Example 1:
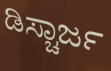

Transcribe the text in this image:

ಡಿಸ್ಚಾರ್ಜ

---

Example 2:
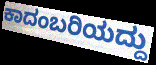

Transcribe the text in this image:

ಕಾದಂಬರಿಯದ್ದು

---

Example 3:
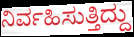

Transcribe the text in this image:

ನಿರ್ವಹಿಸುತ್ತಿದ್ದು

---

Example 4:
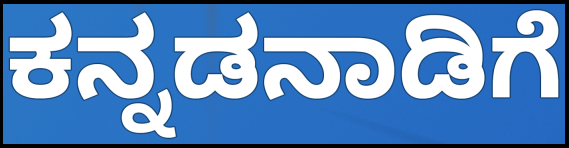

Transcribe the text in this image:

ಕನ್ನಡನಾಡಿಗೆ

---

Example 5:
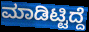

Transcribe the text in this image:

ಮಾಡಿಟ್ಟಿದ್ದೆ